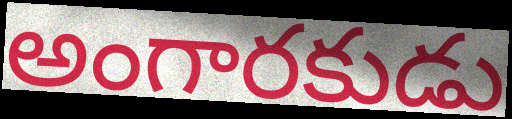
అంగారకుడు